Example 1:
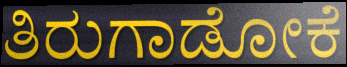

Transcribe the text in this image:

ತಿರುಗಾಡೋಕೆ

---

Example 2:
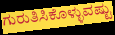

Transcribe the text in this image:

ಗುರುತಿಸಿಕೊಳ್ಳುವಷ್ಟು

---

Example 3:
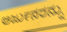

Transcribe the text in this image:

ಅರ್ಜುನರನ್ನು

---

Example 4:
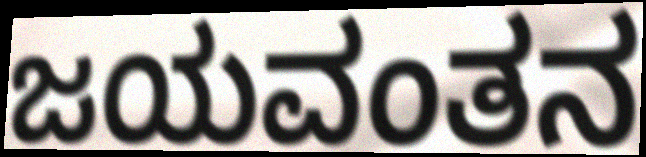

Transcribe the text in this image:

ಜಯವಂತನ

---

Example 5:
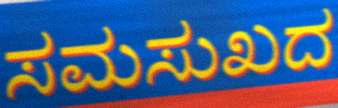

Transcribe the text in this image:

ಸಮಸುಖದ